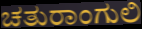
ಚತುರಾಂಗುಲಿ